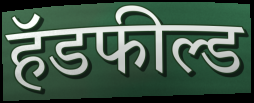
हॅडफील्ड